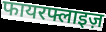
फायरफ्लाइज़